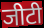
जीटी